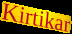
Kirtikar